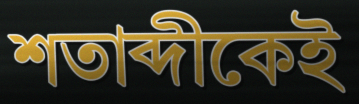
শতাব্দীকেই